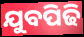
ଯୁବପିଢି